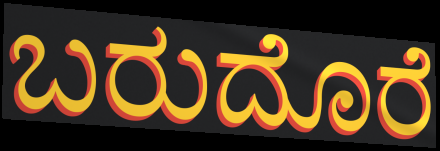
ಬರುದೊರೆ